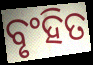
ବୃଂହିତ